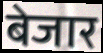
बेजार